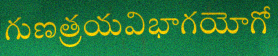
గుణత్రయవిభాగయోగో